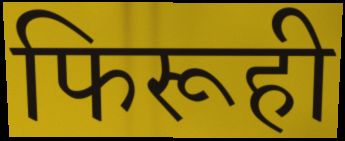
फिरूही